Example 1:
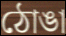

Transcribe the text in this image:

ঠোঙা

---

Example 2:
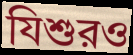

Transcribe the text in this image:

যিশুরও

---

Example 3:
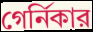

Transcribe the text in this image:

গের্নিকার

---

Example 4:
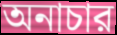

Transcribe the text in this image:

অনাচার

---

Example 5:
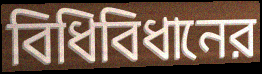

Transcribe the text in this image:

বিধিবিধানের